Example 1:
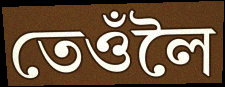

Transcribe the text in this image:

তেওঁলৈ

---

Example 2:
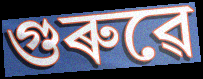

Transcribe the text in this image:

গুৰুৱে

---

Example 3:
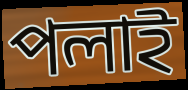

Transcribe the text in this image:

পলাই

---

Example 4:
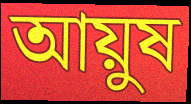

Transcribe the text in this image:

আয়ুষ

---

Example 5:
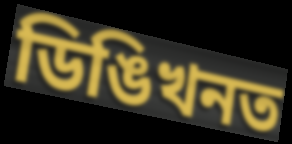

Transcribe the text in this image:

ডিঙিখনত